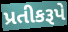
પ્રતીકરૂપે